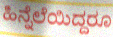
ಹಿನ್ನೆಲೆಯಿದ್ದರೂ